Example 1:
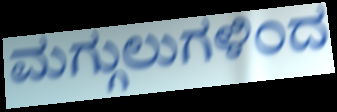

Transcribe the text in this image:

ಮಗ್ಗುಲುಗಳಿಂದ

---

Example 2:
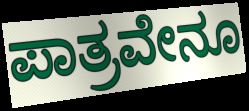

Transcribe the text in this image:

ಪಾತ್ರವೇನೂ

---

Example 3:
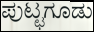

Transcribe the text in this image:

ಪುಟ್ಟಗೂಡು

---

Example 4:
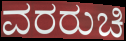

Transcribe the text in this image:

ವರರುಚಿ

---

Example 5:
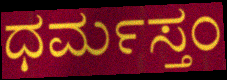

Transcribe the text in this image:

ಧರ್ಮಸ್ತಂ